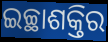
ଇଚ୍ଛାଶକ୍ତିର